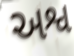
અશ્વ